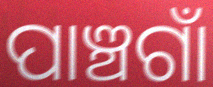
ପାଞ୍ଚଗାଁ